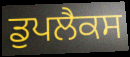
ਡੁਪਲੈਕਸ